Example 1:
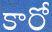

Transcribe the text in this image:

కారో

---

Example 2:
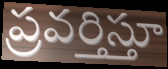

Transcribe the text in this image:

ప్రవర్తిస్తూ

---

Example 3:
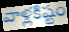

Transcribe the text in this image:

వాళ్లకిష్టం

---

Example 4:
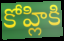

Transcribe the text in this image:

కోహ్లికి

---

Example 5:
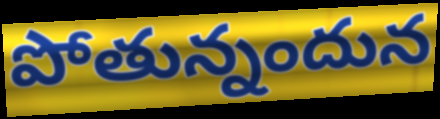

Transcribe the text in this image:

పోతున్నందున